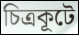
চিত্রকূটে